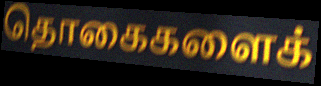
தொகைகளைக்